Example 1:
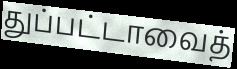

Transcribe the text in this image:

துப்பட்டாவைத்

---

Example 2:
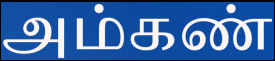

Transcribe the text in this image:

அம்கண்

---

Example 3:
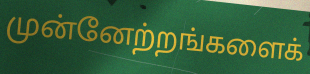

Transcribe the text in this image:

முன்னேற்றங்களைக்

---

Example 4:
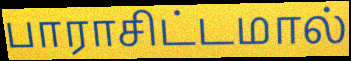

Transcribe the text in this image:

பாராசிட்டமால்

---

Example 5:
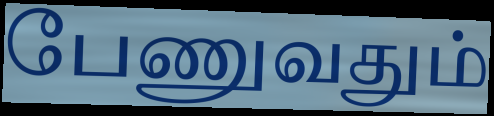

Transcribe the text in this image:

பேணுவதும்